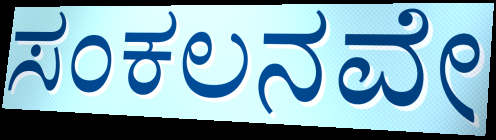
ಸಂಕಲನವೇ